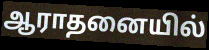
ஆராதனையில்